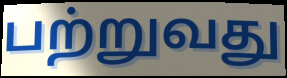
பற்றுவது